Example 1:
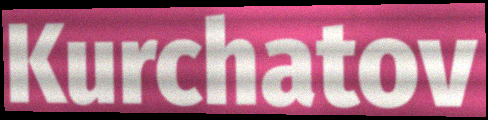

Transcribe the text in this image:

Kurchatov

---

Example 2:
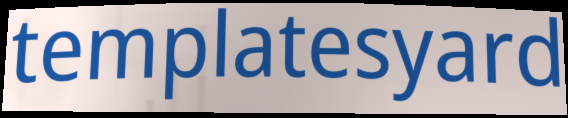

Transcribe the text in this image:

templatesyard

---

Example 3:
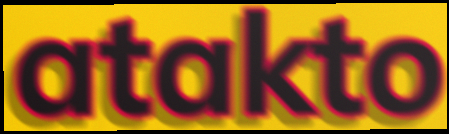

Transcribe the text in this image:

atakto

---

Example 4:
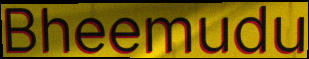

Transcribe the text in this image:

Bheemudu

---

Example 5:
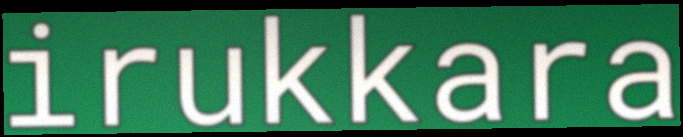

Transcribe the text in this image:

irukkara